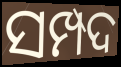
ସମ୍ପଦ